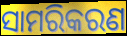
ସାମରିକରଣ